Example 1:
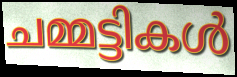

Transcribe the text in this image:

ചമ്മട്ടികൾ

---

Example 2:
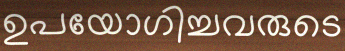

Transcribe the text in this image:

ഉപയോഗിച്ചവരുടെ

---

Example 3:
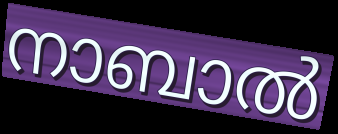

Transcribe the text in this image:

നാബാൽ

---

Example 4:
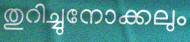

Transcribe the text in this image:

തുറിച്ചുനോക്കലും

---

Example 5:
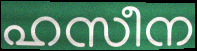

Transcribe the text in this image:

ഹസീന